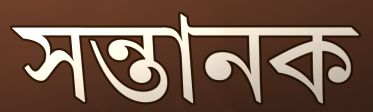
সন্তানক